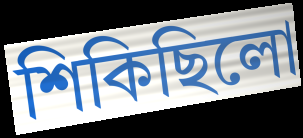
শিকিছিলো